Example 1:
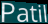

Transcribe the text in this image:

Patil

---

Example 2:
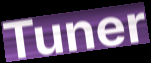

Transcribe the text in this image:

Tuner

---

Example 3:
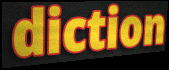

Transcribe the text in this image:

diction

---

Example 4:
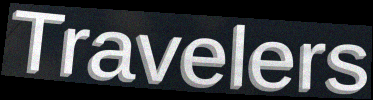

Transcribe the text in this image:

Travelers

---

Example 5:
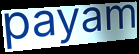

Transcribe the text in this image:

payam